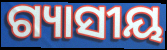
ଗ୍ୟାସୀୟ